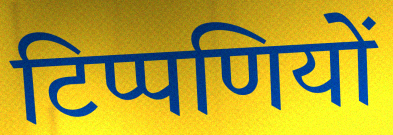
टिप्पणियों